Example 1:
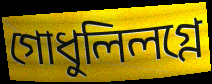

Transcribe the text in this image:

গোধুলিলগ্নে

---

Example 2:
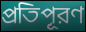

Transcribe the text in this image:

প্রতিপূরণ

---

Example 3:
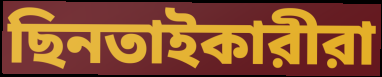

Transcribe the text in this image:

ছিনতাইকারীরা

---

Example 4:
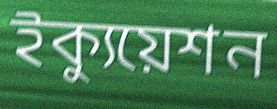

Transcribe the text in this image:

ইক্যুয়েশন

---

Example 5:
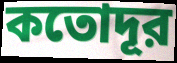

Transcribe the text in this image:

কতোদূর